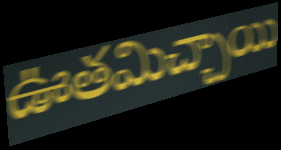
ఊతమిచ్చాయి